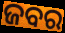
ଜବର